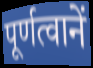
पूर्णत्वानें